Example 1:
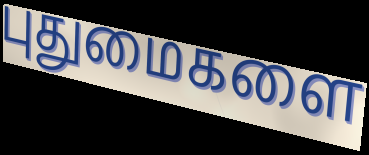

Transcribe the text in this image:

புதுமைகளை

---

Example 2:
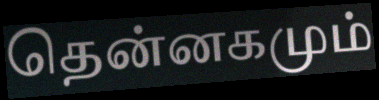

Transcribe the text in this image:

தென்னகமும்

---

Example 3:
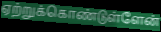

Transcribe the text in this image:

ஏற்றுக்கொண்டுள்ளேன்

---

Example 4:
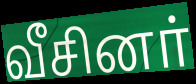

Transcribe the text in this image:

வீசினர்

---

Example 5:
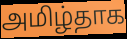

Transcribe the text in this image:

அமிழ்தாக